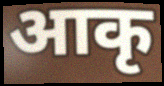
आकृ